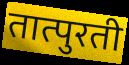
तात्पुरती